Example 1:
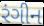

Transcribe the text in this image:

રંગીન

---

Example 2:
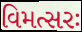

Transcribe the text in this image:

વિમત્સરઃ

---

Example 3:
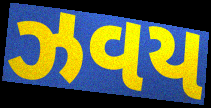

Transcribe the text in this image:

ઝવય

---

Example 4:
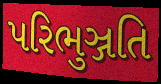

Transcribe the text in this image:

પરિભુઞ્જતિ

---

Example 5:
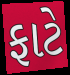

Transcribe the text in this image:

ફાટે